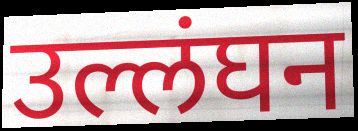
उल्लंघन